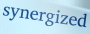
synergized